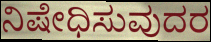
ನಿಷೇಧಿಸುವುದರ